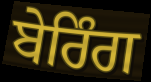
ਬੇਰਿੰਗ